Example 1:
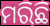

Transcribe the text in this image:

ମରିଛି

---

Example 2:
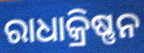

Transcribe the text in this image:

ରାଧାକ୍ରିଷ୍ଣନ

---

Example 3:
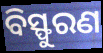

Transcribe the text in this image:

ବିସ୍ଫୁରଣ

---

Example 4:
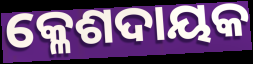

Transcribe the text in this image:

କ୍ଳେଶଦାୟକ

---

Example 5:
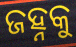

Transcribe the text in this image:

ଜହ୍ନକୁ